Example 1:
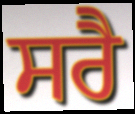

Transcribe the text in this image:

ਸਰੈ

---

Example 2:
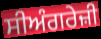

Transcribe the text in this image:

ਸੀਅੰਗਰੇਜ਼ੀ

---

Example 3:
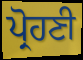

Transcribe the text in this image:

ਪ੍ਰੋਹਣੀ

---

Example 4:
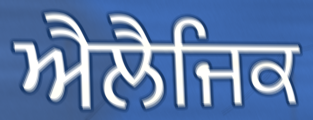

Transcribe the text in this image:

ਐਲੈਜਿਕ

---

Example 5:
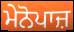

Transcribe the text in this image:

ਮੇਨੋਪਾਜ਼